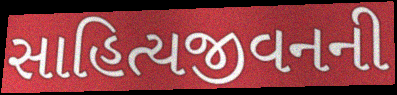
સાહિત્યજીવનની